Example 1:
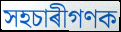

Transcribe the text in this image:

সহচাৰীগণক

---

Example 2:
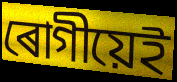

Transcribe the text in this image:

ৰোগীয়েই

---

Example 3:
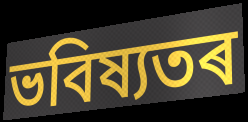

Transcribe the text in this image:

ভবিষ্যতৰ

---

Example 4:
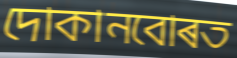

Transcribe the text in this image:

দোকানবোৰত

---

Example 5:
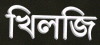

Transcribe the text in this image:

খিলজি